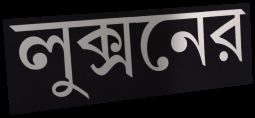
লুক্সনের